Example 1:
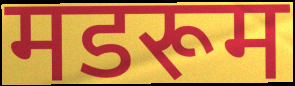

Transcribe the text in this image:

मडरूम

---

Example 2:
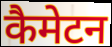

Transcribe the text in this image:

कैमेटन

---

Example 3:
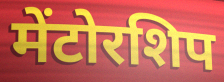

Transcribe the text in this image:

मेंटोरशिप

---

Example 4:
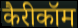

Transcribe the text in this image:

कैरीकॉम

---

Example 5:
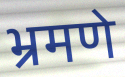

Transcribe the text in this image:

भ्रमणे